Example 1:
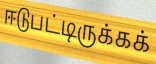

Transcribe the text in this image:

ஈடுபட்டிருக்கக்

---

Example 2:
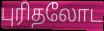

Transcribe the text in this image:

புரிதலோட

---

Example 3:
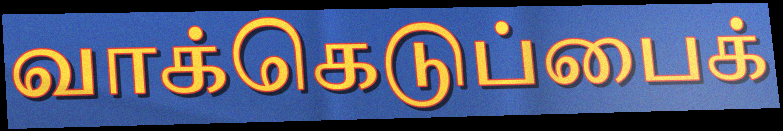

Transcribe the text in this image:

வாக்கெடுப்பைக்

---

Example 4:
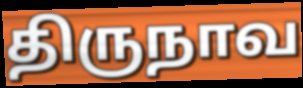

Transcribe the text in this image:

திருநாவ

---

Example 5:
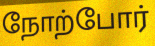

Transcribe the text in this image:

நோற்போர்